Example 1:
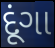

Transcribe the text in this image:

દૂંગા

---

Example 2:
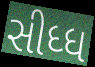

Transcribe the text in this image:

સીધ્ધ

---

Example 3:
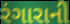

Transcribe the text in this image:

રંગારાની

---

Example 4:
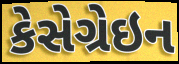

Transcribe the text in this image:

કેસેગ્રેઇન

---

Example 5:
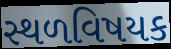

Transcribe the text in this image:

સ્થળવિષયક